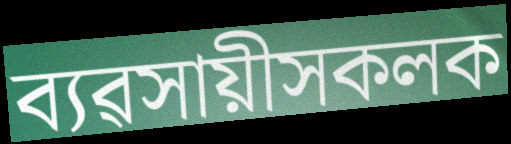
ব্যৱসায়ীসকলক